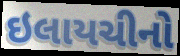
ઇલાયચીનો